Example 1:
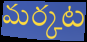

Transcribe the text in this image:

మర్కట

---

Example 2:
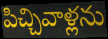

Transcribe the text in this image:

పిచ్చివాళ్లను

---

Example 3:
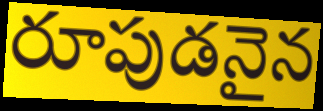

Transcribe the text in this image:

రూపుడనైన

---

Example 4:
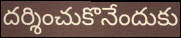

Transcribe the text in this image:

దర్శించుకొనేందుకు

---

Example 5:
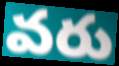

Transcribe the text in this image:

వరు